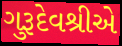
ગુરૂદેવશ્રીએ